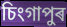
চিংগাপুৰ